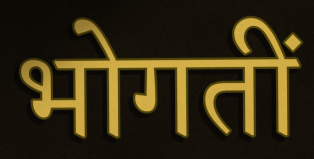
भोगतीं